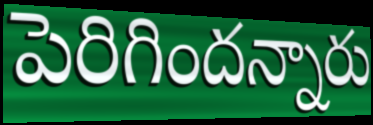
పెరిగిందన్నారు